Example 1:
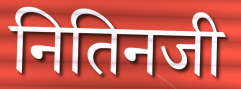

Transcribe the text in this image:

नितिनजी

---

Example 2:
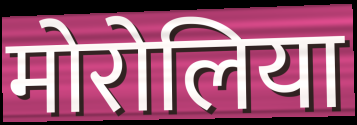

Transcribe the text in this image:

मोरोलिया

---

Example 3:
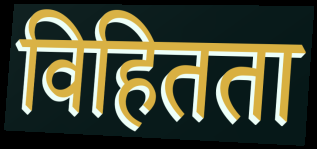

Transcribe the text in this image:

विहितता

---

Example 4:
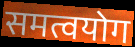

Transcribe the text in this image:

समत्वयोग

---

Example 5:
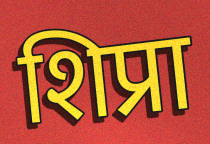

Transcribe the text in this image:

शिप्रा